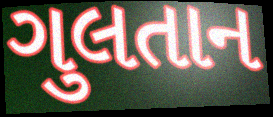
ગુલતાન